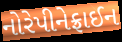
નોરેપીનેફ્રાઈન